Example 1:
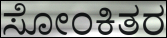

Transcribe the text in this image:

ಸೋಂಕಿತರ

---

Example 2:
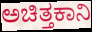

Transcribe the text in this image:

ಅಚಿತ್ತಕಾನಿ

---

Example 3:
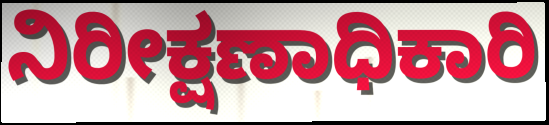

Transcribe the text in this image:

ನಿರೀಕ್ಷಣಾಧಿಕಾರಿ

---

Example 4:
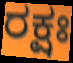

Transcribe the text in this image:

ರಕ್ಷಃ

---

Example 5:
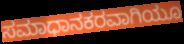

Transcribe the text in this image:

ಸಮಾಧಾನಕರವಾಗಿಯೂ